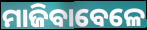
ମାଜିବାବେଳେ